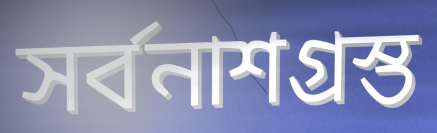
সর্বনাশগ্রস্ত